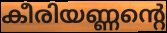
കീരിയണ്ണന്റെ